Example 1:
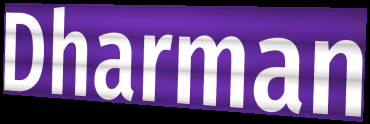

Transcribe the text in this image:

Dharman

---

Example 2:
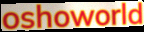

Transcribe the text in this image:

oshoworld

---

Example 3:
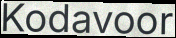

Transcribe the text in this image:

Kodavoor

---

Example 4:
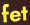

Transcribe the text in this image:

fet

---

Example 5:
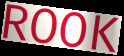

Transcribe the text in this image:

ROOK